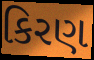
કિરણ